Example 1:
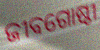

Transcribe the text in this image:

ଜୀବଗୋଷ୍ଠୀ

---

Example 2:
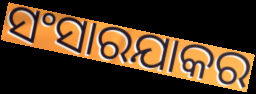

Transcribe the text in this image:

ସଂସାରଯାକର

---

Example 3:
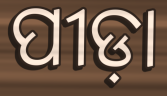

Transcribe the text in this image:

ପୀଡ଼ା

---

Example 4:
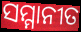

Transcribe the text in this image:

ସମ୍ମାନୀତ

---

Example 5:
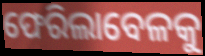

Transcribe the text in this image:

ଫେରିଲାବେଳକୁ